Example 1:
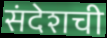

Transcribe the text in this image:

संदेशची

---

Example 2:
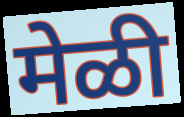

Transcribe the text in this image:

मेळी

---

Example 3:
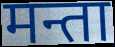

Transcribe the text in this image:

मन्ता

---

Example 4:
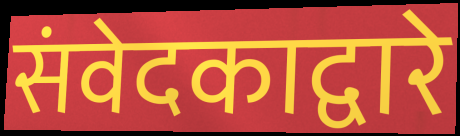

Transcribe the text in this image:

संवेदकाद्वारे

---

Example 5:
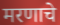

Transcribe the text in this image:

मरणाचे